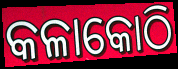
କଳାକୋଠି